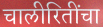
चालीरितींचा